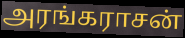
அரங்கராசன்